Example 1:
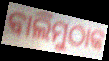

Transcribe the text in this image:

ବାଲିମୁଠାକ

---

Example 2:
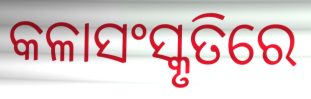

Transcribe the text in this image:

କଳାସଂସ୍କୃତିରେ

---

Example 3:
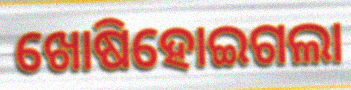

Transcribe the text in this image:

ଖୋଷିହୋଇଗଲା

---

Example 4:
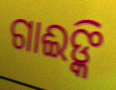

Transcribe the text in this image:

ଗାଈଙ୍କି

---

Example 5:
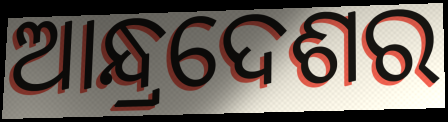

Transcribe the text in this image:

ଆନ୍ଧ୍ରଦେଶର